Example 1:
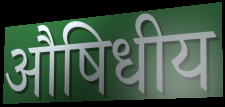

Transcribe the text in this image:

औषिधीय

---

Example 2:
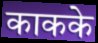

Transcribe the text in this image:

काकके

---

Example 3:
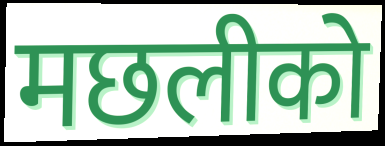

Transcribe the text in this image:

मछलीको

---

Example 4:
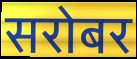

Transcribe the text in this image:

सरोबर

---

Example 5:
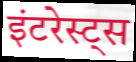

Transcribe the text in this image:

इंटरेस्ट्स